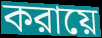
করায়ে